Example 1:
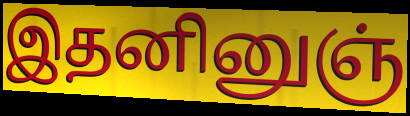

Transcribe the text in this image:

இதனினுஞ்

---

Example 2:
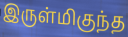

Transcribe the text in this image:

இருள்மிகுந்த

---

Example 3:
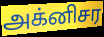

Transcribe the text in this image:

அக்னிசர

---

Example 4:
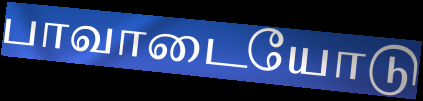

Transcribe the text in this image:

பாவாடையோடு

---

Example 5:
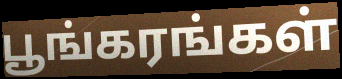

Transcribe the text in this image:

பூங்கரங்கள்